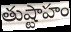
తుష్టాహం